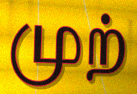
முற்